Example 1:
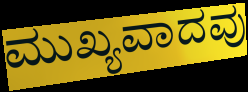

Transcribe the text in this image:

ಮುಖ್ಯವಾದವು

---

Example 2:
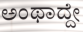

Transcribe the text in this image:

ಅಂಥಾದ್ದೇ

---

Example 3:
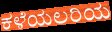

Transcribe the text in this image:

ಕಳೆಯಲರಿಯ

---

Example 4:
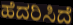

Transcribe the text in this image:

ಹೆದರಿಸಿದೆ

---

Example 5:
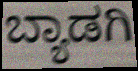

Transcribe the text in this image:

ಬ್ಯಾಡಗಿ